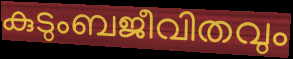
കുടുംബജീവിതവും